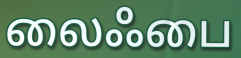
லைஃபை